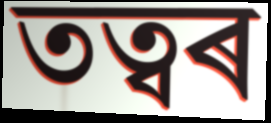
তত্বৰ